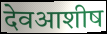
देवआशीष